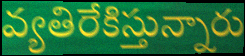
వ్యతిరేకిస్తున్నారు